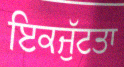
ਇਕਜੁੱਟਤਾ